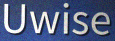
Uwise